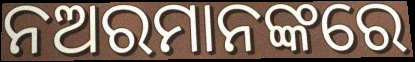
ନଅରମାନଙ୍କରେ